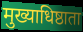
मुख्याधिष्ठाता